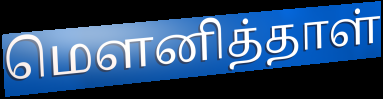
மௌனித்தாள்